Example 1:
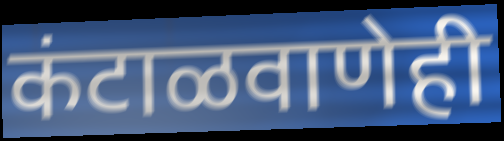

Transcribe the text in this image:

कंटाळवाणेही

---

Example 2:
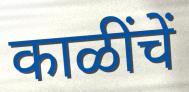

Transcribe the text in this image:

काळींचें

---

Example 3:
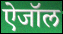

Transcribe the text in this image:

ऐजॉल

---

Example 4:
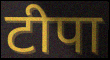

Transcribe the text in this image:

टीपा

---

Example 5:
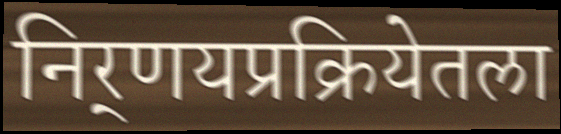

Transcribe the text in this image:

निर्णयप्रक्रियेतला